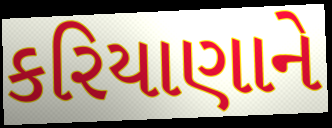
કરિયાણાને